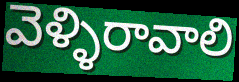
వెళ్ళిరావాలి